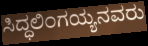
ಸಿದ್ಧಲಿಂಗಯ್ಯನವರು